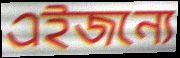
এইজন্যে